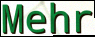
Mehr